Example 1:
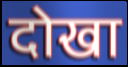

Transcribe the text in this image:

दोखा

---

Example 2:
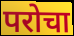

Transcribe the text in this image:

परोचा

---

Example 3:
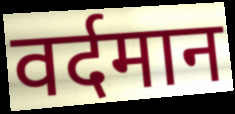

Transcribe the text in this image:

वर्दमान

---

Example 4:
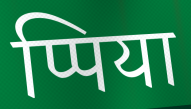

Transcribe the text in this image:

प्पिया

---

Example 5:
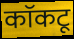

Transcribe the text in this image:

कॉकटू